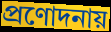
প্রণোদনায়